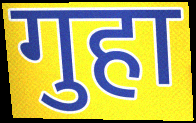
गुहा